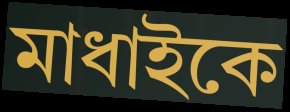
মাধাইকে